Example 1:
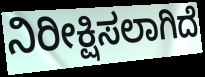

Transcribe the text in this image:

ನಿರೀಕ್ಷಿಸಲಾಗಿದೆ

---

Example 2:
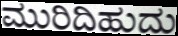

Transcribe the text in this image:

ಮುರಿದಿಹುದು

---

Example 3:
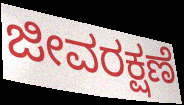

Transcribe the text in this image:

ಜೀವರಕ್ಷಣೆ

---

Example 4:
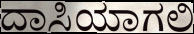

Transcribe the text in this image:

ದಾಸಿಯಾಗಲಿ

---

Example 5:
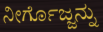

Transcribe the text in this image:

ನೀರ್ಗೊಜ್ಜನ್ನು